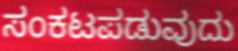
ಸಂಕಟಪಡುವುದು